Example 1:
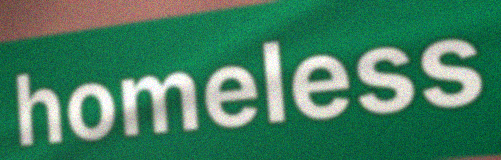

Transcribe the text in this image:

homeless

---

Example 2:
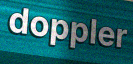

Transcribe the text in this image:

doppler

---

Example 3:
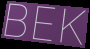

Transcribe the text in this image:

BEK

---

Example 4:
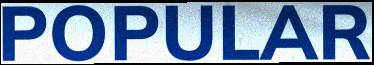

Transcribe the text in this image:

POPULAR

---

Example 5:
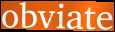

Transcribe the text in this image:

obviate